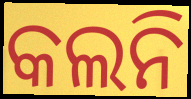
କଲନି